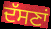
ਦੱਸਣਾਂ